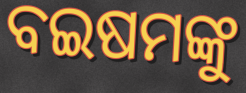
ବଇଷମଙ୍କୁ